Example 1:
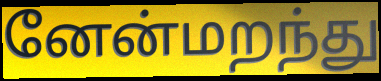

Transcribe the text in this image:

னேன்மறந்து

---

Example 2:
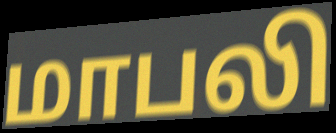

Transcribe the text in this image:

மாபலி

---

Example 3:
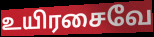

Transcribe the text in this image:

உயிரசைவே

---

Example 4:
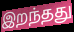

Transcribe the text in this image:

இறந்தது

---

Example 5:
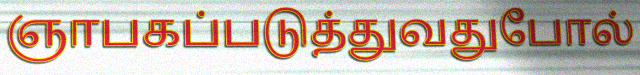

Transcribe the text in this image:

ஞாபகப்படுத்துவதுபோல்